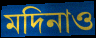
মদিনাও